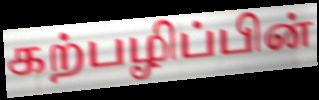
கற்பழிப்பின்